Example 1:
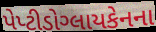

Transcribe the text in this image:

પેપ્ટીડોગ્લાયકેનના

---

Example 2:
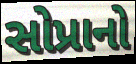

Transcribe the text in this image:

સોપ્રાનો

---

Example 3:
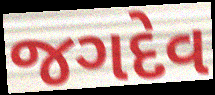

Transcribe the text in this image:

જગદેવ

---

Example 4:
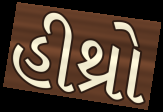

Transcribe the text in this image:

હીથ્રો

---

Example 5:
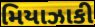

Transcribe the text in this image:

મિયાઝાકી